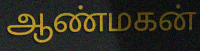
ஆண்மகன்